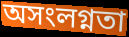
অসংলগ্নতা